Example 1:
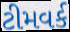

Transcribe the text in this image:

ટીમવર્ક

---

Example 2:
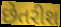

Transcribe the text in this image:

છેતરીશ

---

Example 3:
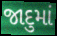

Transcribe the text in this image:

જાદુમાં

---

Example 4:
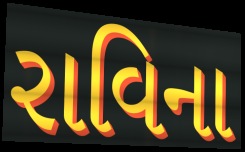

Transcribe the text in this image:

રાવિના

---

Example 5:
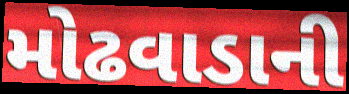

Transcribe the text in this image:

મોઢવાડાની